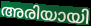
അരിയായി